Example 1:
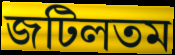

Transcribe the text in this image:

জটিলতম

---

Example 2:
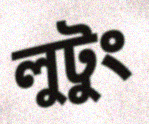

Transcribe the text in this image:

লুটুং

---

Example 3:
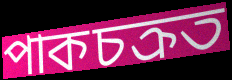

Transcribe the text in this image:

পাকচক্ৰত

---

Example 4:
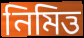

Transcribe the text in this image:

নিমিত্ত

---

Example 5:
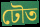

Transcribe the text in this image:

ঢৌত